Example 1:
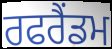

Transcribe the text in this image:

ਰਫਰੈਂਡਮ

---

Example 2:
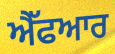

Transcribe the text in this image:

ਐੱਫਆਰ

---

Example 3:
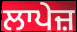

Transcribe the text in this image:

ਲਾਪੇਜ਼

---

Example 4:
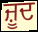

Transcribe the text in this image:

ਜ਼ੂਦ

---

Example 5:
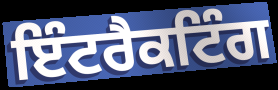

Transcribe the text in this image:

ਇੰਟਰੈਕਟਿੰਗ